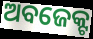
ଅବଜେକ୍ଟ